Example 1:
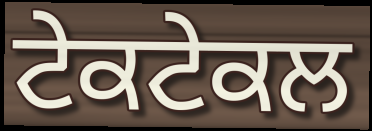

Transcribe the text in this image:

ਟੇਕਟੇਕਲ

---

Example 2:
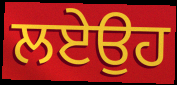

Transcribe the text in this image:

ਲਏਉਹ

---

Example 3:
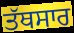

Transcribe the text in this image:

ਤੱਥਸਾਰ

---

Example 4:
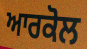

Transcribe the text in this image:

ਆਰਕੋਲ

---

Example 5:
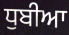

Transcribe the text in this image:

ਧੁਬੀਆ